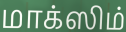
மாக்ஸிம்